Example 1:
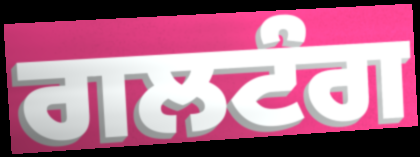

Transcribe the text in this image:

ਗਲਟੰਗ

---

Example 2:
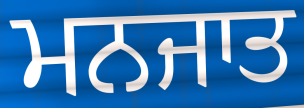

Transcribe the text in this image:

ਮਨਜਾਤ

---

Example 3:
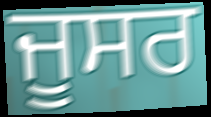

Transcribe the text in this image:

ਜੂਸਰ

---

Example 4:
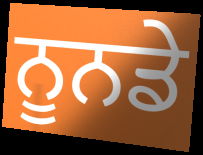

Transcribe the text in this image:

ਨੂਨਡੇ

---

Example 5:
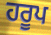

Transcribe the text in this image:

ਹਰੂਪ